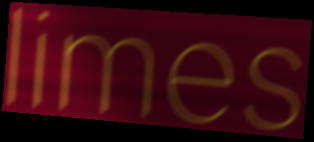
limes